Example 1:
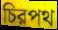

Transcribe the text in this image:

চিরপথ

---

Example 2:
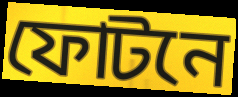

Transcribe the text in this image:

ফোটনে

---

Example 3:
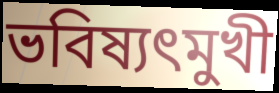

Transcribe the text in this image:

ভবিষ্যৎমুখী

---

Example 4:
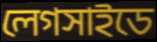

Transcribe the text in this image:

লেগসাইডে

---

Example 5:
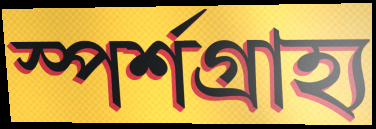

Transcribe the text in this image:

স্পর্শগ্রাহ্য